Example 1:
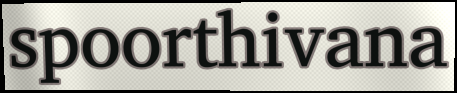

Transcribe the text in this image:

spoorthivana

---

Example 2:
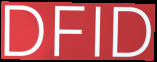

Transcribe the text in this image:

DFID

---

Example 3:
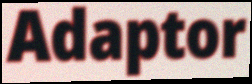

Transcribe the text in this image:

Adaptor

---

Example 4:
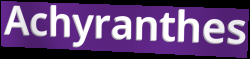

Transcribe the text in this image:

Achyranthes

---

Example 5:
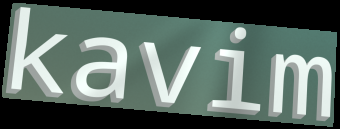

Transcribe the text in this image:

kavim